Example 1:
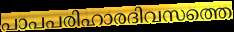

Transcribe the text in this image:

പാപപരിഹാരദിവസത്തെ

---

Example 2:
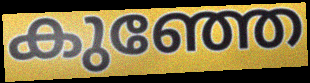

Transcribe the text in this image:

കുഞ്ഞേ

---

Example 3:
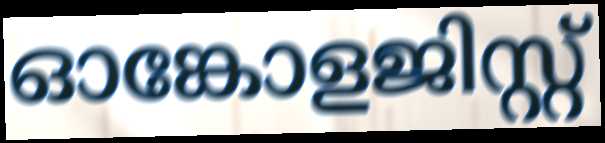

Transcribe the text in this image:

ഓങ്കോളജിസ്റ്റ്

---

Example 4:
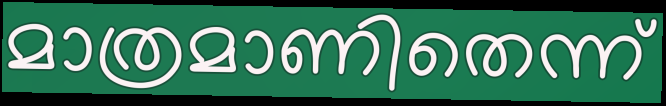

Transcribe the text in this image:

മാത്രമാണിതെന്ന്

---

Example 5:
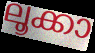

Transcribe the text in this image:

ലൂക്കാ